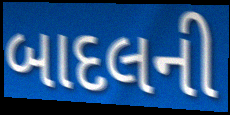
બાદલની